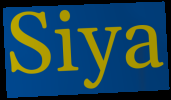
Siya